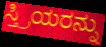
ಸ್ತ್ರಿಯರನ್ನು